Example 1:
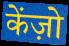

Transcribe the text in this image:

केंज़ो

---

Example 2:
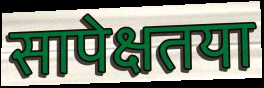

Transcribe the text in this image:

सापेक्षतया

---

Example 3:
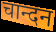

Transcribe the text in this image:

चान्दन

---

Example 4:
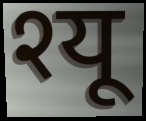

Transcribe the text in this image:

श्यू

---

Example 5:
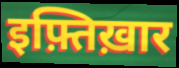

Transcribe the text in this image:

इफ़्तिख़ार